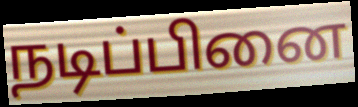
நடிப்பினை